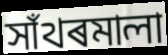
সাঁথৰমালা